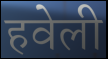
हवेली